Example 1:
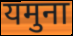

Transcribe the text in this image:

यमुना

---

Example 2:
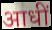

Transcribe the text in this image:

आधीं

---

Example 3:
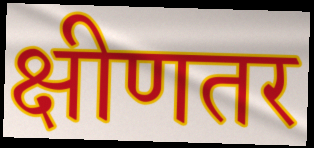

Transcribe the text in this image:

क्षीणतर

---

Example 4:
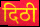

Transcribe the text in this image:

दिठी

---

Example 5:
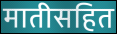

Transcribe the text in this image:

मातीसहित